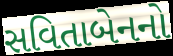
સવિતાબેનનો